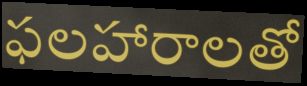
ఫలహారాలతో